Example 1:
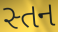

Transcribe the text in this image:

સ્તન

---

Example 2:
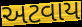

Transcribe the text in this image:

અટવાય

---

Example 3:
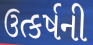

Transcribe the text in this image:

ઉત્કર્ષની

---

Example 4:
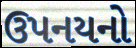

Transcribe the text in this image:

ઉપનયનો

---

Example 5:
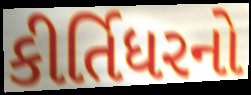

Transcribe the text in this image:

કીર્તિધરનો